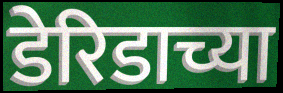
डेरिडाच्या